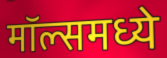
मॉल्समध्ये